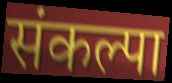
संकल्पा